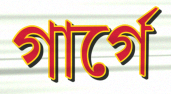
গাৰ্গে